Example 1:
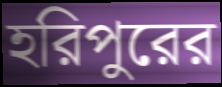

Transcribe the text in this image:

হরিপুরের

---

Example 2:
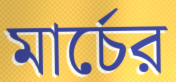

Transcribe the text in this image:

মার্চের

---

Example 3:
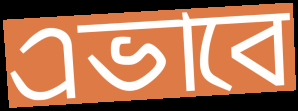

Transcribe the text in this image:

এভাবে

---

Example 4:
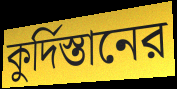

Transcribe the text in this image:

কুর্দিস্তানের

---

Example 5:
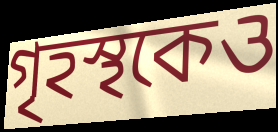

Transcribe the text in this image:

গৃহস্থকেও